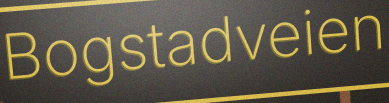
Bogstadveien